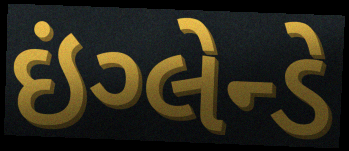
ઇંગ્લેન્ડે